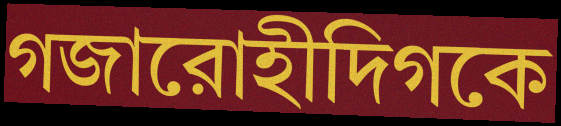
গজারোহীদিগকে